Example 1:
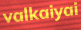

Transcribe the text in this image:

valkaiyai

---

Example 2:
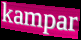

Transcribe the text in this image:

kampar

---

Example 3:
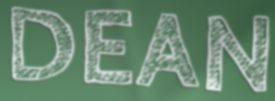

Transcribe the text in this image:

DEAN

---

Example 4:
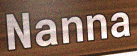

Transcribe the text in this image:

Nanna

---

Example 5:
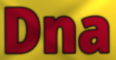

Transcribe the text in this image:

Dna